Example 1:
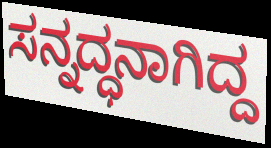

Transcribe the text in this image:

ಸನ್ನದ್ಧನಾಗಿದ್ದ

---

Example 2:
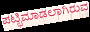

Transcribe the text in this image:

ಪಟ್ಟಿಮಾಡಲಾಗಿರುವ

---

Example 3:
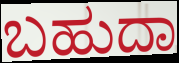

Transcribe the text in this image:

ಬಹುದಾ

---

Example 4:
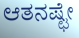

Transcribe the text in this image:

ಆತನಷ್ಟೇ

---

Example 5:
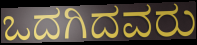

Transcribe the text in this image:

ಒದಗಿದವರು